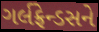
ગર્લફ્રેન્ડસને